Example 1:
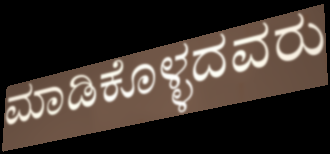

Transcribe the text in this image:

ಮಾಡಿಕೊಳ್ಳದವರು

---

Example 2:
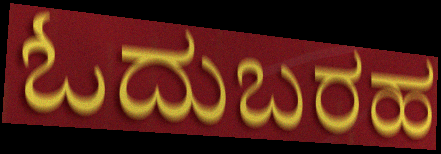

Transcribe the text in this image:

ಓದುಬರಹ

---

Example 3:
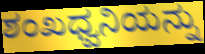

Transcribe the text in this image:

ಶಂಖಧ್ವನಿಯನ್ನು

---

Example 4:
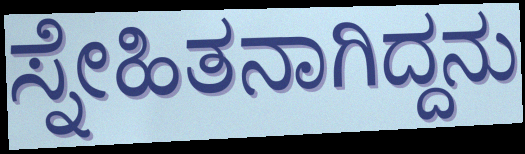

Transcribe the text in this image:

ಸ್ನೇಹಿತನಾಗಿದ್ದನು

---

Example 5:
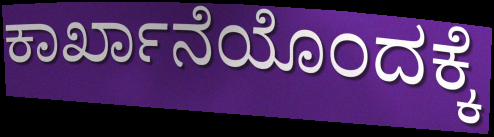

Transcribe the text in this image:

ಕಾರ್ಖಾನೆಯೊಂದಕ್ಕೆ